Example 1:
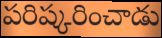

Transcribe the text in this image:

పరిష్కరించాడు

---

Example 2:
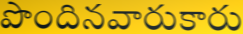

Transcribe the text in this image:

పొందినవారుకారు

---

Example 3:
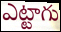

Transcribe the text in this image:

ఎట్టాగు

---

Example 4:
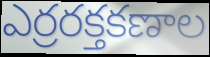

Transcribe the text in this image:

ఎర్రరక్తకణాల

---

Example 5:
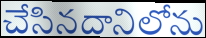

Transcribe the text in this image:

చేసినదానిలోను